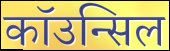
कॉउन्सिल